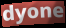
dyone